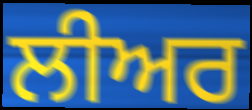
ਲੀਅਰ